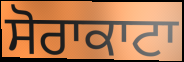
ਸੋਰਾਕਾਟਾ